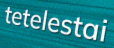
tetelestai